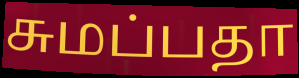
சுமப்பதா